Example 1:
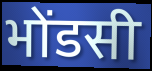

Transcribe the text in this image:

भोंडसी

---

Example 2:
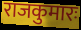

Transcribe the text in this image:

राजकुमारः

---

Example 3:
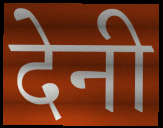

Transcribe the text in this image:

देनी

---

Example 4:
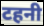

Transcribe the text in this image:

टहनी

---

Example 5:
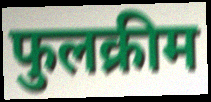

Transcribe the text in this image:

फुलक्रीम